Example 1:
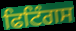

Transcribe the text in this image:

ਫਿਟਿੰਗਸ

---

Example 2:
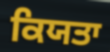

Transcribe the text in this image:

ਕਿਯਤਾ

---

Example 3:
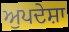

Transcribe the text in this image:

ਅੁਪਦੇਸ਼ਾ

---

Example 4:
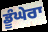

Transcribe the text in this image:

ਡੂੰਘੇਰਾ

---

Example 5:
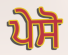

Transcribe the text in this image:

ਪੇਸੋ